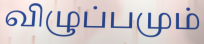
விழுப்பமும்